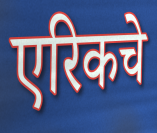
एरिकचे